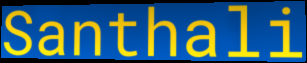
Santhali